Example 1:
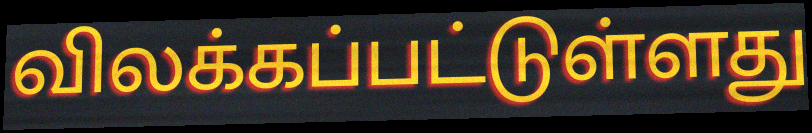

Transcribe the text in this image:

விலக்கப்பட்டுள்ளது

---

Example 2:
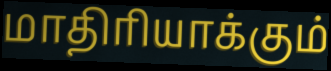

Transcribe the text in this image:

மாதிரியாக்கும்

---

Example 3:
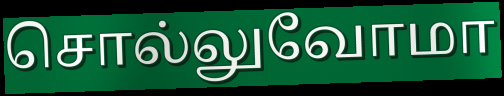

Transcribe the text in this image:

சொல்லுவோமா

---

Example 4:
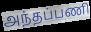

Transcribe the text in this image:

அந்தப்பணி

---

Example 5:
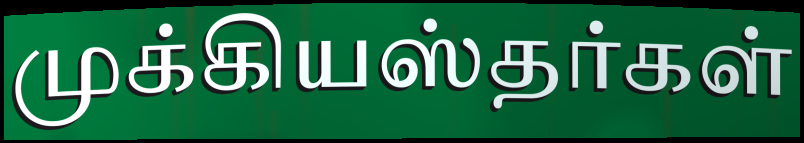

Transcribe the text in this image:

முக்கியஸ்தர்கள்